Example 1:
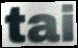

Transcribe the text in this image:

tai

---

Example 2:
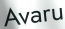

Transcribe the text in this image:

Avaru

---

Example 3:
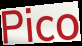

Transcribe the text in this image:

Pico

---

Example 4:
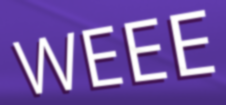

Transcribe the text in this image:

WEEE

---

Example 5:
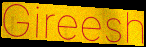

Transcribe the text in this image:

Gireesh